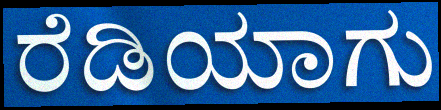
ರೆಡಿಯಾಗು